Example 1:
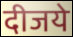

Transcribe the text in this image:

दीजये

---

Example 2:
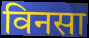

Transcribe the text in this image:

विनसा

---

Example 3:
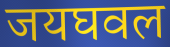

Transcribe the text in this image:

जयघवल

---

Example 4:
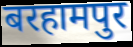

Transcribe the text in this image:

बरहामपुर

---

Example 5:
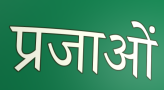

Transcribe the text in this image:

प्रजाओं